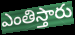
ఎంతిస్తారు